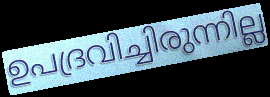
ഉപദ്രവിച്ചിരുന്നില്ല